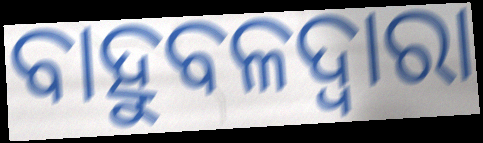
ବାହୁବଳଦ୍ୱାରା